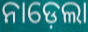
ନାଡ଼େଲା